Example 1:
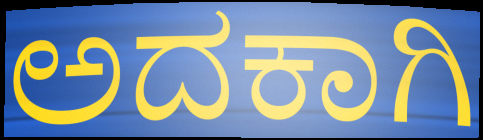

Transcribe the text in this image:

ಅದಕಾಗಿ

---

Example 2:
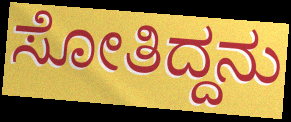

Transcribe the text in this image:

ಸೋತಿದ್ದನು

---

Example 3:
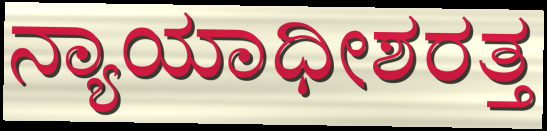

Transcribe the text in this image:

ನ್ಯಾಯಾಧೀಶರತ್ತ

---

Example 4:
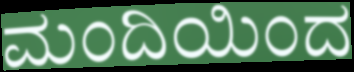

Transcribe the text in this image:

ಮಂದಿಯಿಂದ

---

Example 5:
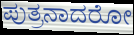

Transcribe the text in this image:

ಪುತ್ರನಾದರೋ